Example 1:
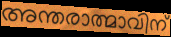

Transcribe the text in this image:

അന്തരാത്മാവിന്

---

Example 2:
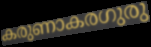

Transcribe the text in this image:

കരുണാകരഗുരു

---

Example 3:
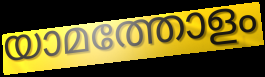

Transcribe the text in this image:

യാമത്തോളം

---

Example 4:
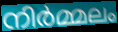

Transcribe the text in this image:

നിർമ്മലം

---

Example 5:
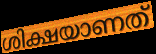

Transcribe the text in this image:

ശിക്ഷയാണത്